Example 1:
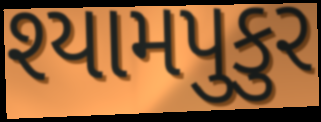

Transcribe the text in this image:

શ્યામપુકુર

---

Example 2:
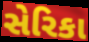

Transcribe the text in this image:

સેરિકા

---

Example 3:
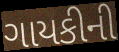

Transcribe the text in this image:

ગાયકીની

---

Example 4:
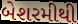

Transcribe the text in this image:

બેશરમીથી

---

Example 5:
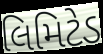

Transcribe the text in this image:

લિમિટેડ